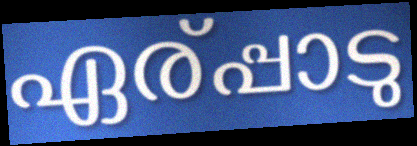
ഏര്പ്പാടു